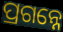
ପ୍ରଗନ୍ନେ